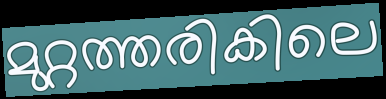
മുറ്റത്തരികിലെ